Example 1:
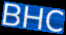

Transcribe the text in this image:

BHC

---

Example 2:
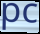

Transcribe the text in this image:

pc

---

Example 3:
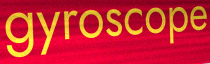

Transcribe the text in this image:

gyroscope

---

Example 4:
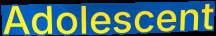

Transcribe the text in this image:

Adolescent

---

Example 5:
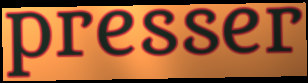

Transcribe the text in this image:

presser